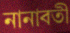
নানাবতী